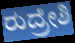
ರುದ್ರೇಶಿ